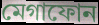
মেগাফোন